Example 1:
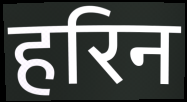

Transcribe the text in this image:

हरिन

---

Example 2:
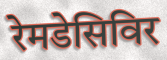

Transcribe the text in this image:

रेमडेसिविर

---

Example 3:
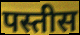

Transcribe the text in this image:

पस्तीस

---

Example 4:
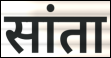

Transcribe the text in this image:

सांता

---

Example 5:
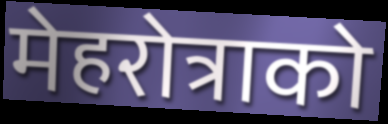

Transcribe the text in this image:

मेहरोत्राको